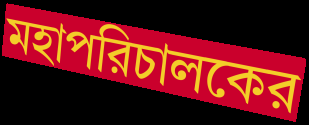
মহাপরিচালকের